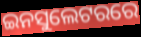
ଇନସୁଲେଟରରେ